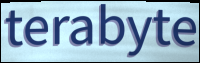
terabyte